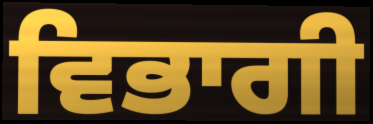
ਵਿਭਾਗੀ